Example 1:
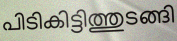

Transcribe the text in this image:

പിടികിട്ടിത്തുടങ്ങി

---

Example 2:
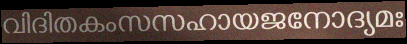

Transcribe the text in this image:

വിദിതകംസസഹായജനോദ്യമഃ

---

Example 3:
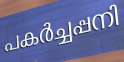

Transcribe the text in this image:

പകർച്ചപ്പനി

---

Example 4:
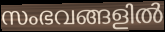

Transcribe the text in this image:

സംഭവങ്ങളിൽ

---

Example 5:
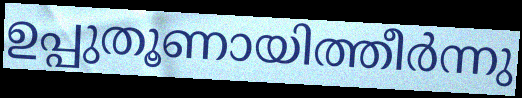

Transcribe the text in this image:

ഉപ്പുതൂണായിത്തീർന്നു